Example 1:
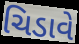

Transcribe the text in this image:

ચિડાવે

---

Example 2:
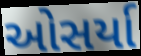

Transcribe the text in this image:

ઓસર્યા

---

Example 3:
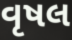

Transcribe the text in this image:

વૃષલ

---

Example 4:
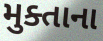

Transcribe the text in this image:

મુક્તાના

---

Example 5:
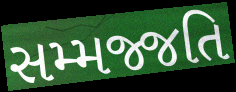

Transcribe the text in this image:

સમ્મજ્જતિ